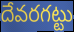
దేవరగట్టు